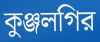
কুঞ্জলগির